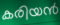
കരിയൻ